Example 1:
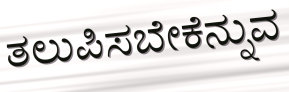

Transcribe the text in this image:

ತಲುಪಿಸಬೇಕೆನ್ನುವ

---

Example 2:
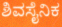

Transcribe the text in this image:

ಶಿವಸೈನಿಕ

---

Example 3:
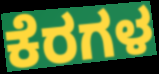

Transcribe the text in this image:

ಕೆರಗಳ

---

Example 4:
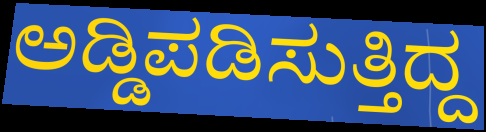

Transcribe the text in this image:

ಅಡ್ಡಿಪಡಿಸುತ್ತಿದ್ದ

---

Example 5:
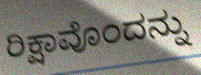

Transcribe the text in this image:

ರಿಕ್ಷಾವೊಂದನ್ನು